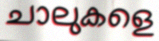
ചാലുകളെ